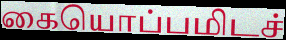
கையொப்பமிடச்